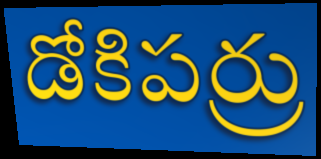
డోకిపర్రు